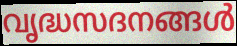
വൃദ്ധസദനങ്ങൾ